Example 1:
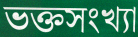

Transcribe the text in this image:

ভক্তসংখ্যা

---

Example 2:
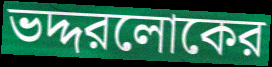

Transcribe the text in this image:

ভদ্দরলোকের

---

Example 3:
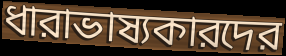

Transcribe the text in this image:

ধারাভাষ্যকারদের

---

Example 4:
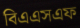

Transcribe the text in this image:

বিএএসএফ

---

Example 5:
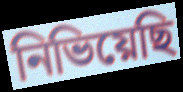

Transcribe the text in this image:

নিভিয়েছি